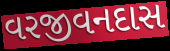
વરજીવનદાસ